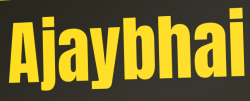
Ajaybhai